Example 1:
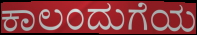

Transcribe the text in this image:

ಕಾಲಂದುಗೆಯ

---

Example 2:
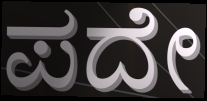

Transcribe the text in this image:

ಪದೇ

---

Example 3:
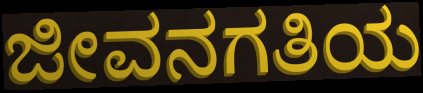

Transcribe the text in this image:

ಜೀವನಗತಿಯ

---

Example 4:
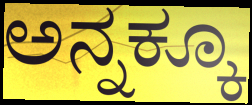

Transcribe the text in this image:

ಅನ್ನಕ್ಕೂ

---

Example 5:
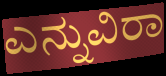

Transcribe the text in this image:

ಎನ್ನುವಿರಾ